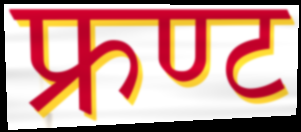
फ्रण्ट